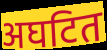
अघटित